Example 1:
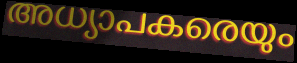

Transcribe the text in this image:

അധ്യാപകരെയും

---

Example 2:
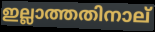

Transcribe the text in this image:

ഇല്ലാത്തതിനാല്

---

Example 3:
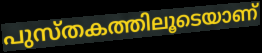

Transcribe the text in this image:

പുസ്തകത്തിലൂടെയാണ്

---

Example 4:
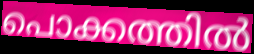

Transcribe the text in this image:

പൊക്കത്തിൽ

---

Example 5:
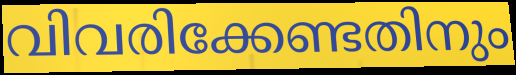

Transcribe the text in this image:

വിവരിക്കേണ്ടതിനും